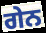
ਗੇਨ